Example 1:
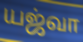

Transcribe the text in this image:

யஜ்வா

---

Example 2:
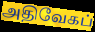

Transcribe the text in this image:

அதிவேகப்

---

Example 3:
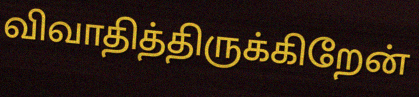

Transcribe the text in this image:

விவாதித்திருக்கிறேன்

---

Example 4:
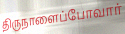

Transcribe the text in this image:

திருநாளைப்போவார்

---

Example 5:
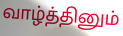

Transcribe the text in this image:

வாழ்த்தினும்